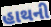
હાથની